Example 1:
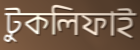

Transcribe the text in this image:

টুকলিফাই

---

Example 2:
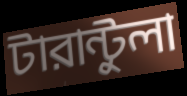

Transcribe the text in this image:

টারান্টুলা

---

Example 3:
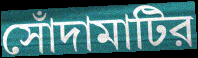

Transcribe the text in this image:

সোঁদামাটির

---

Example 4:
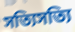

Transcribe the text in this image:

সত্যিসত্যি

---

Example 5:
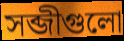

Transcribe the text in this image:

সব্জীগুলো